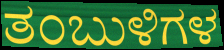
ತಂಬುಳಿಗಳ